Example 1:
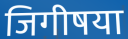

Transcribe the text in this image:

जिगीषया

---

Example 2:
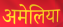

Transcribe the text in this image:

अमेलिया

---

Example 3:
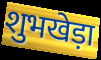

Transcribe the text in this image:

शुभखेड़ा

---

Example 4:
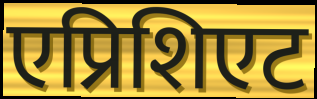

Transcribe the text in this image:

एप्रिशिएट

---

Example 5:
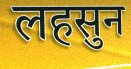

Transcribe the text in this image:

लहसुन